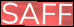
SAFF